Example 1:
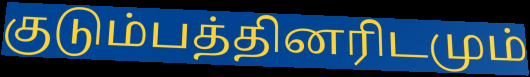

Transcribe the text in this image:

குடும்பத்தினரிடமும்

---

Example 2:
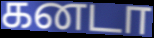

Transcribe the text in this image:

கனடா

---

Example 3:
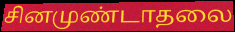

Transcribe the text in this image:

சினமுண்டாதலை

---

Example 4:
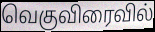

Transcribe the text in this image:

வெகுவிரைவில்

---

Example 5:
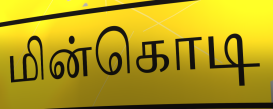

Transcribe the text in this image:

மின்கொடி